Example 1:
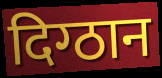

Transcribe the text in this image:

दिग्ठान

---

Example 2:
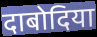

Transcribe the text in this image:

दाबोदिया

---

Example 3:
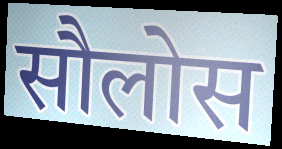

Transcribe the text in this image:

सौलोस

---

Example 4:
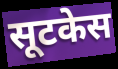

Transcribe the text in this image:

सूटकेस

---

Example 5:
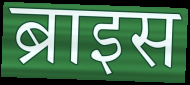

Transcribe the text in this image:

ब्राइस